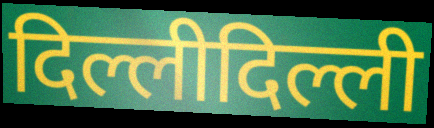
दिल्लीदिल्ली